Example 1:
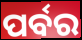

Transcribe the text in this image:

ପର୍ବର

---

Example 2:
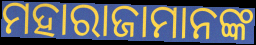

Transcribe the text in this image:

ମହାରାଜାମାନଙ୍କ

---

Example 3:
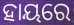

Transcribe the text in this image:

ହାୟରେ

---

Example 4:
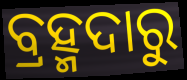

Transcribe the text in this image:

ବ୍ରହ୍ମଦାରୁ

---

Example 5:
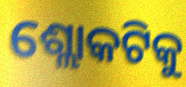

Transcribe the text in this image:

ଶ୍ଲୋକଟିକୁ